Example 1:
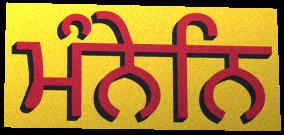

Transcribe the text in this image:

ਮੰਨੇਨਿ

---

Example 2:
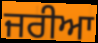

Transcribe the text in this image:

ਜਰੀਆ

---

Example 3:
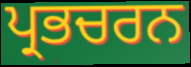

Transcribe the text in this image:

ਪ੍ਰਭਚਰਨ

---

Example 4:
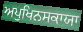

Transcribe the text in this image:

ਅਪੁਖਿਨਸਕਾਯਾ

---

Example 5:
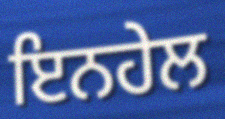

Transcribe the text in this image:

ਇਨਹੇਲ